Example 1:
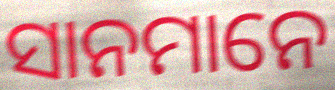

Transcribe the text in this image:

ସାନମାନେ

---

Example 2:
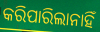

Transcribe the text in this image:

କରିପାରିଲାନାହିଁ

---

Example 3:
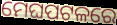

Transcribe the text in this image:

ମେଘପଟଳରେ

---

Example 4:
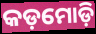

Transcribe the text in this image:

କଡ଼ମୋଡ଼ି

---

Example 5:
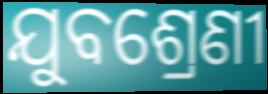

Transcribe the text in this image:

ଯୁବଶ୍ରେଣୀ